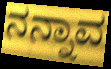
ನನ್ನಾವ